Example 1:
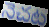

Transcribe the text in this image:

నెచట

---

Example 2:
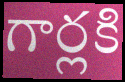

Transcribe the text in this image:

గార్లకి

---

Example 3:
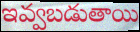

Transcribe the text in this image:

ఇవ్వబడుతాయి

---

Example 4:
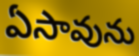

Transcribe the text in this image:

ఏసావును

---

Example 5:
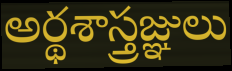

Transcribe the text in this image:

అర్థశాస్త్రజ్ఞులు